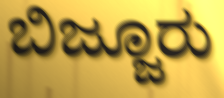
ಬಿಜ್ಜೂರು